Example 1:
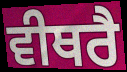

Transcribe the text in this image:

ਵੀਥਰੈ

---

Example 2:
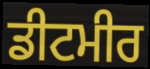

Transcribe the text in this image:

ਡੀਟਮੀਰ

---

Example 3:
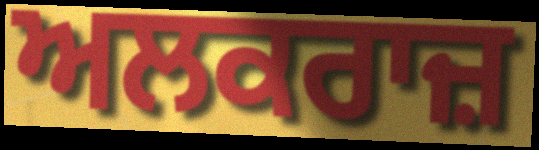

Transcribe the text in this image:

ਅਲਕਰਾਜ਼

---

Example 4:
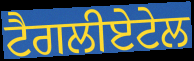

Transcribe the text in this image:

ਟੈਗਲੀਏਟੇਲ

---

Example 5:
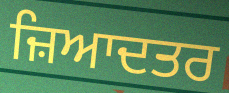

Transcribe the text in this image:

ਜ਼ਿਆਦਤਰ